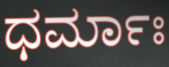
ಧರ್ಮಾಃ